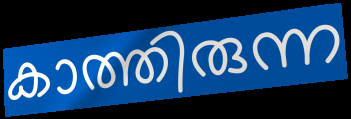
കാത്തിരുന്ന